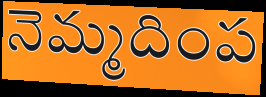
నెమ్మదింప